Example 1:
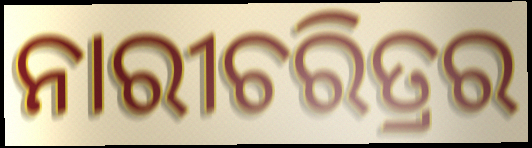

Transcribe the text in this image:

ନାରୀଚରିତ୍ରର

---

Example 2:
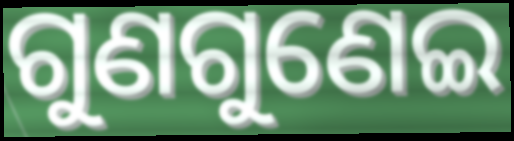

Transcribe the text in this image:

ଗୁଣଗୁଣେଇ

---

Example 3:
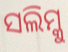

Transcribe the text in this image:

ସଲିମ୍କୁ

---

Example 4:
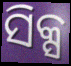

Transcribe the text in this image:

ସିକ୍ସ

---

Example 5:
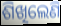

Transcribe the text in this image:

ଶିଖିଲେଣି